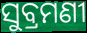
ସୁବ୍ରମଣୀ